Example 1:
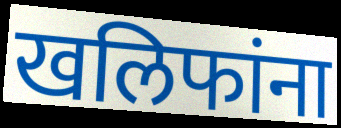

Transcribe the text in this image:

खलिफांना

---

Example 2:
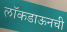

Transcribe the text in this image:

लॉकडाऊनची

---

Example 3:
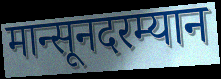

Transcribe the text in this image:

मान्सूनदरम्यान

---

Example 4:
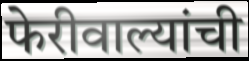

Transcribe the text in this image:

फेरीवाल्यांची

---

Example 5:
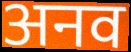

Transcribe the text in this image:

अनव